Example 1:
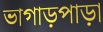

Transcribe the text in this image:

ভাগাড়পাড়া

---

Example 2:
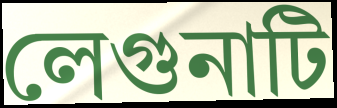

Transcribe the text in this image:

লেগুনাটি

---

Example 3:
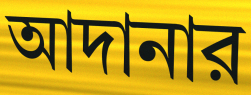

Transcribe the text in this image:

আদানার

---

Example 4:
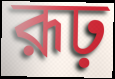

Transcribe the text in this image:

রূঢ়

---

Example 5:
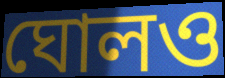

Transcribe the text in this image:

ঘোলও